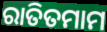
ରାତିତମାମ